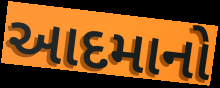
આદમાનો